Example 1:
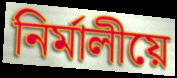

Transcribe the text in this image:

নিৰ্মালীয়ে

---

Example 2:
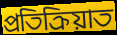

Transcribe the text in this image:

প্ৰতিক্ৰিয়াত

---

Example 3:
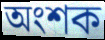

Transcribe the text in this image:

অংশক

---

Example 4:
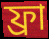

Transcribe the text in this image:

ফ্ৰা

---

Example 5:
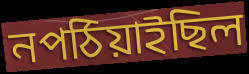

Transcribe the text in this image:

নপঠিয়াইছিল